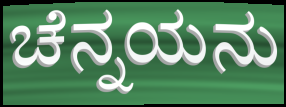
ಚೆನ್ನಯನು